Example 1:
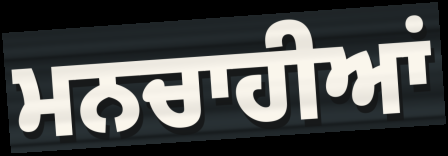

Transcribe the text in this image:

ਮਨਚਾਹੀਆਂ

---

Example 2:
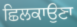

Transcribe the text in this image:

ਛਿਲਕਾਉਣਾ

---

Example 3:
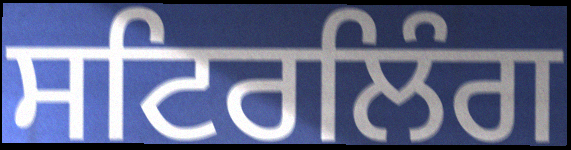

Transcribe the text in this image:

ਸਟਿਰਲਿੰਗ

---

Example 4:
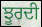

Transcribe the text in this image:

ਝੂਰਦੀ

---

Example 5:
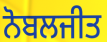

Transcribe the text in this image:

ਨੋਬਲਜੀਤ